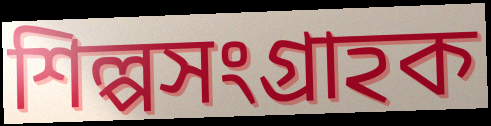
শিল্পসংগ্রাহক